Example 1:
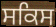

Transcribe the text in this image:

ਸਕਿਸ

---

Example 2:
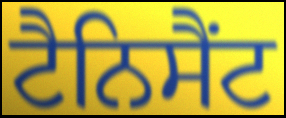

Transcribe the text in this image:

ਟੈਨਿਸੈਂਟ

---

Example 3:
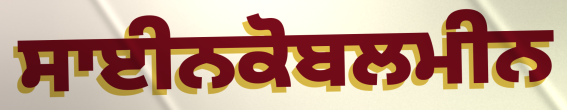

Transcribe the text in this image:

ਸਾਈਨਕੋਬਲਮੀਨ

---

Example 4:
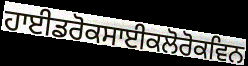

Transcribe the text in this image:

ਹਾਈਡਰੋਕਸਾਈਕਲੋਰੋਕਵਿਨ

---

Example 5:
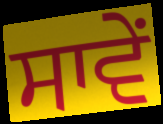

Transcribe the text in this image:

ਸਾਵੇਂ